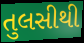
તુલસીથી